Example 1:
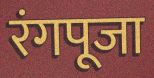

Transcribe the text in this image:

रंगपूजा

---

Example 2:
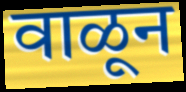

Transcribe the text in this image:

वाळून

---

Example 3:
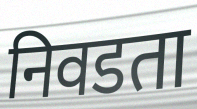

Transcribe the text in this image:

निवडता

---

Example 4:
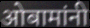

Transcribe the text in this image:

ओबामांनी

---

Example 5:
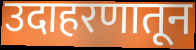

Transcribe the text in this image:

उदाहरणातून